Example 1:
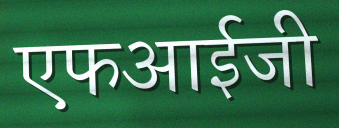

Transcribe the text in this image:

एफआईजी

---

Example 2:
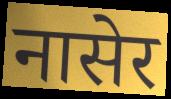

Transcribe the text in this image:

नासेर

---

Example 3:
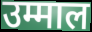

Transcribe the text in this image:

उम्माल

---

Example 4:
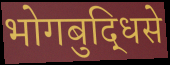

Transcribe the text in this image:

भोगबुद्धिसे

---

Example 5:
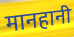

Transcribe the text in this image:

मानहानी